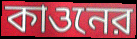
কাওনের